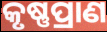
କୃଷ୍ଣପ୍ରାଣ